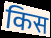
किस